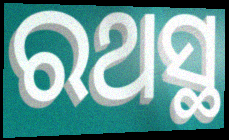
ରଥସ୍ଥ